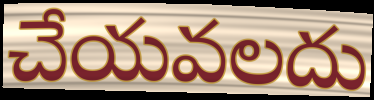
చేయవలదు